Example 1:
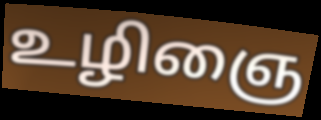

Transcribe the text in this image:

உழிஞை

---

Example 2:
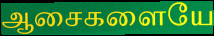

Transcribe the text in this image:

ஆசைகளையே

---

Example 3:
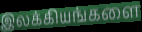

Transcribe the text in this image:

இலக்கியங்களை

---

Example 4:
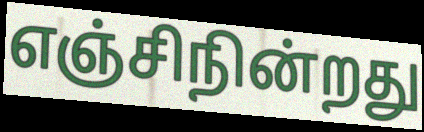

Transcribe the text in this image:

எஞ்சிநின்றது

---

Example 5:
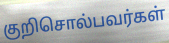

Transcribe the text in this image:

குறிசொல்பவர்கள்